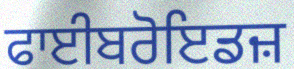
ਫਾਈਬਰੋਇਡਜ਼